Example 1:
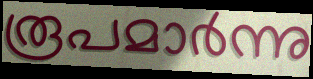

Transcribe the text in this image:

രൂപമാർന്നു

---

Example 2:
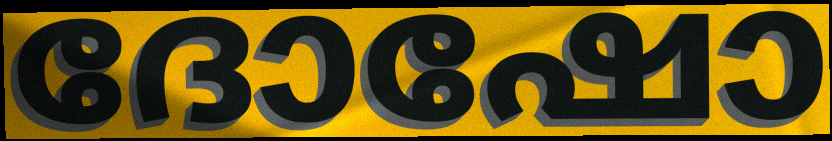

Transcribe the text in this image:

ദോഷോ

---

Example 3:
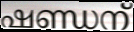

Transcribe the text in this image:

ഷണ്ഡന്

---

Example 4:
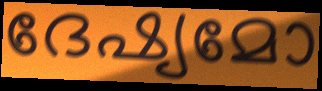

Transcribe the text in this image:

ദേഷ്യമോ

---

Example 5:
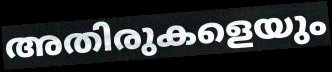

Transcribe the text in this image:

അതിരുകളെയും